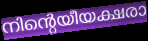
നിന്റെയീയക്ഷരാ